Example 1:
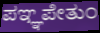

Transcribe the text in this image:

ಪಞ್ಞಪೇತುಂ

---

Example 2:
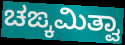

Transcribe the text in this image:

ಚಙ್ಕಮಿತ್ವಾ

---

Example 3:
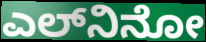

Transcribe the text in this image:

ಎಲ್‍ನಿನೋ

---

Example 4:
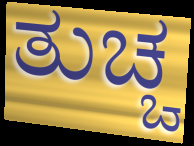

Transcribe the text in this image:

ತುಚ್ಚ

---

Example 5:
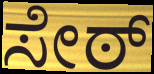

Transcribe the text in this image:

ಸೇಠ್